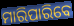
ମାରିପାରିବେ